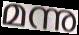
മന്നു